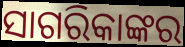
ସାଗରିକାଙ୍କର